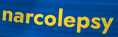
narcolepsy